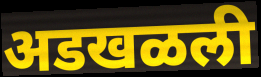
अडखळली